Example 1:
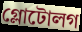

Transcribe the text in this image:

গ্লোটোলগ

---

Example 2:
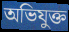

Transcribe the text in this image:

অভিযুক্ত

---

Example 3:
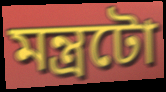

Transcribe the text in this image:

মন্ত্ৰটো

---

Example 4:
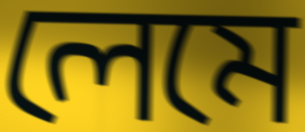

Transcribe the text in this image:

লেমে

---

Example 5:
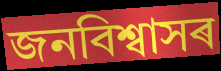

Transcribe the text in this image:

জনবিশ্বাসৰ